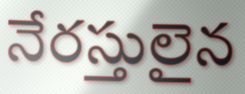
నేరస్తులైన